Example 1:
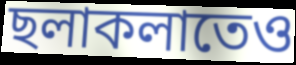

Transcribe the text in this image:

ছলাকলাতেও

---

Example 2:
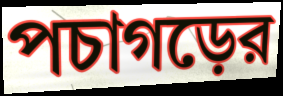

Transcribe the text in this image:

পচাগড়ের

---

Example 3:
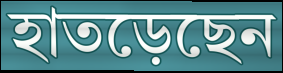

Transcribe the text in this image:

হাতড়েছেন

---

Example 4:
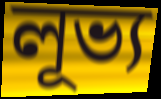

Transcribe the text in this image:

লূভ্য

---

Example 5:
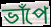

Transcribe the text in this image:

ভাঁপে